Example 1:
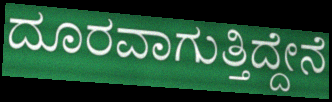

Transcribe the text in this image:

ದೂರವಾಗುತ್ತಿದ್ದೇನೆ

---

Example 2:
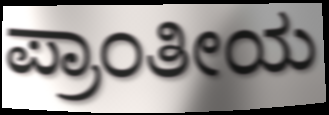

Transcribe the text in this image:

ಪ್ರಾಂತೀಯ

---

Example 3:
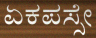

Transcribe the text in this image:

ಏಕಪಸ್ಸೇ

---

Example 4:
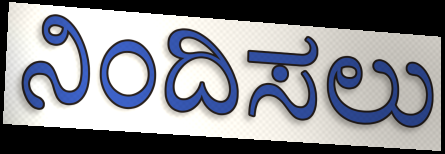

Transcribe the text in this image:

ನಿಂದಿಸಲು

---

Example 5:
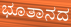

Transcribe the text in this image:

ಭೂತಾನದ